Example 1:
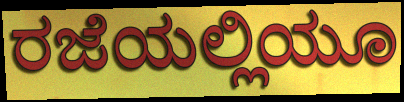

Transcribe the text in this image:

ರಜೆಯಲ್ಲಿಯೂ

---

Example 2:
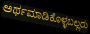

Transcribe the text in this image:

ಅರ್ಥಮಾಡಿಕೊಳ್ಳಬಲ್ಲರು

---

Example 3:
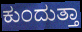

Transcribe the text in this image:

ಕುಂದುತ್ತಾ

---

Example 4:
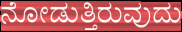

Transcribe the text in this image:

ನೋಡುತ್ತಿರುವುದು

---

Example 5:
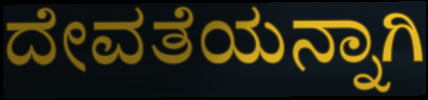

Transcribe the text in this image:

ದೇವತೆಯನ್ನಾಗಿ